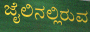
ಜೈಲಿನಲ್ಲಿರುವ